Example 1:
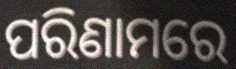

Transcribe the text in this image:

ପରିଣାମରେ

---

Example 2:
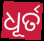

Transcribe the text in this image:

ଧୂର୍ତ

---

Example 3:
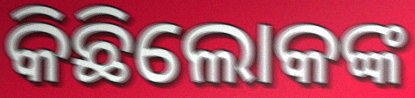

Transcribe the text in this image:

କିଛିଲୋକଙ୍କ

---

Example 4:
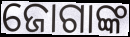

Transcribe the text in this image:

ଜୋଗାଙ୍କ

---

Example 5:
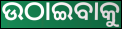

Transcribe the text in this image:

ଉଠାଇବାକୁ